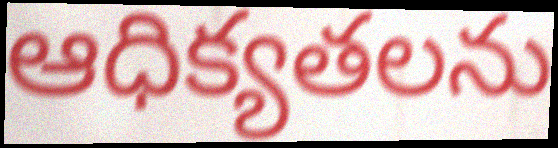
ఆధిక్యతలను